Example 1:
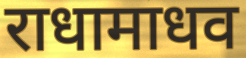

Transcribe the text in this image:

राधामाधव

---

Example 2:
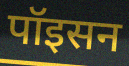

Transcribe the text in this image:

पॉइसन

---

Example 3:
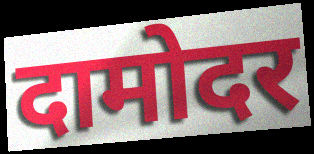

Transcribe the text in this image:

दामोदर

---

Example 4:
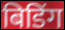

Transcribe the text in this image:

बिडिंग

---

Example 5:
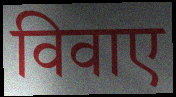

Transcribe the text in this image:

विवाए